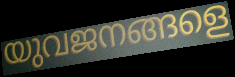
യുവജനങ്ങളെ